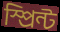
স্প্রিন্ট